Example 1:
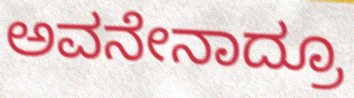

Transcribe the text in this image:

ಅವನೇನಾದ್ರೂ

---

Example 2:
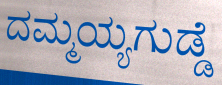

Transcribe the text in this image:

ದಮ್ಮಯ್ಯಗುಡ್ಡೆ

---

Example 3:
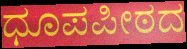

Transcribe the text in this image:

ಧೂಪಪೀಠದ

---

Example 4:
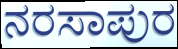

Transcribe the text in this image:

ನರಸಾಪುರ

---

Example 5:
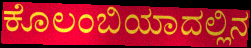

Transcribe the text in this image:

ಕೊಲಂಬಿಯಾದಲ್ಲಿನ